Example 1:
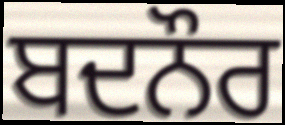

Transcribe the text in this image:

ਬਦਨੌਰ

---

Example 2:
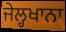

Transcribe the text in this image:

ਜੇਲ੍ਹਖਾਨਾ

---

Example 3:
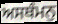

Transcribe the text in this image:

ਅਸਥੰਮਨੁ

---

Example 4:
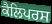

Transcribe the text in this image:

ਕੈਲਿਪਰਸ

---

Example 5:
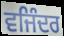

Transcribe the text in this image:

ਵਜਿੰਦਰ